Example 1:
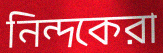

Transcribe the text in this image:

নিন্দকেরা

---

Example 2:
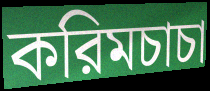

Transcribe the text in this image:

করিমচাচা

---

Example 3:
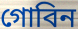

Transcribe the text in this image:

গোবিন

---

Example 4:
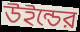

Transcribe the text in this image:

উইন্ডের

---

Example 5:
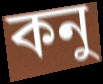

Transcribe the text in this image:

কনু